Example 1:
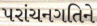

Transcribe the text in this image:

પરાંચનગતિને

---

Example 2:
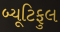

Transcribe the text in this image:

બ્યૂટિફુલ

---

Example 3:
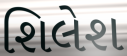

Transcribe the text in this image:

શિલેશ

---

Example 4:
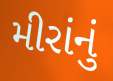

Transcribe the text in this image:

મીરાંનું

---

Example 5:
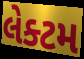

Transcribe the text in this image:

લેક્ટમ